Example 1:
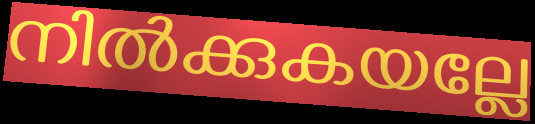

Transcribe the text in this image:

നിൽക്കുകയല്ലേ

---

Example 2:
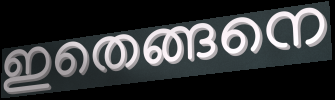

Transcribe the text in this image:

ഇതെങ്ങനെ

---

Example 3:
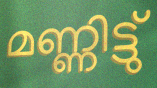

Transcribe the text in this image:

മണ്ണിട്ടു്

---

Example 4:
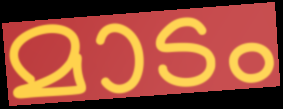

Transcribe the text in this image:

മാടം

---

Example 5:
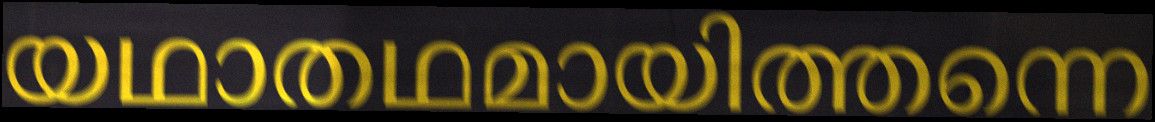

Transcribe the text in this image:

യഥാതഥമായിത്തന്നെ